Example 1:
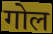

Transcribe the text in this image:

गोल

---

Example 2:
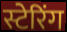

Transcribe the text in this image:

स्टेरिंग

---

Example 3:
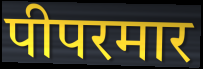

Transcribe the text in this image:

पीपरमार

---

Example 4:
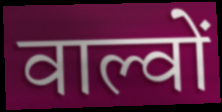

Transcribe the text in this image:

वाल्वों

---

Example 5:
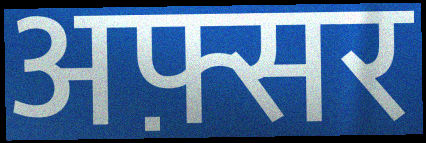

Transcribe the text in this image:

अफ़्सर